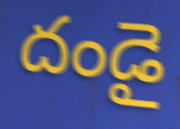
దండై